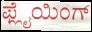
ಫ್ಲೈಯಿಂಗ್